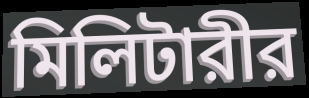
মিলিটারীর